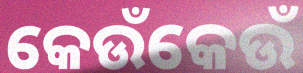
କେଉଁକେଉଁ